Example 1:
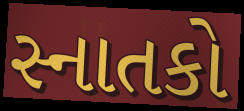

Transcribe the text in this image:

સ્નાતકો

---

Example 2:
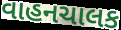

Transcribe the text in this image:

વાહનચાલક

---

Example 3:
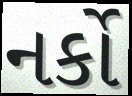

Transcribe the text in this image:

નર્કો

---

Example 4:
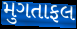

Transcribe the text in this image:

મુગતાફલ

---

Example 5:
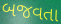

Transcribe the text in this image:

બજવતા